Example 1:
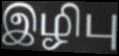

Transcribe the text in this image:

இழிபு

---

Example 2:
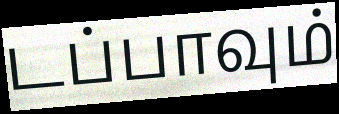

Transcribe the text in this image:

டப்பாவும்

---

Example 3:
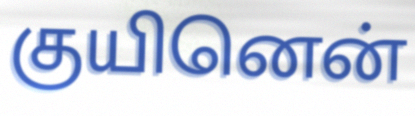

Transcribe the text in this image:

குயினென்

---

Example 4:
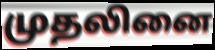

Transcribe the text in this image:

முதலினை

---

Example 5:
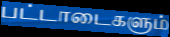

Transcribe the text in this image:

பட்டாடைகளும்